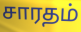
சாரதம்